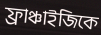
ফ্রাঞ্চাইজিকে